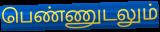
பெண்ணுடலும்